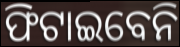
ଫିଟାଇବେନି